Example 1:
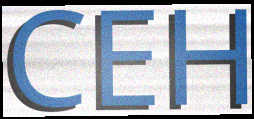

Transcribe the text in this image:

CEH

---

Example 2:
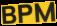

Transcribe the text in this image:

BPM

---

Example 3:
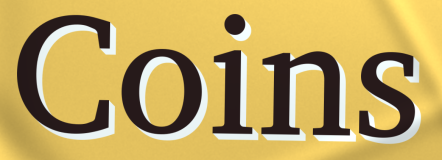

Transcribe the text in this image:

Coins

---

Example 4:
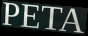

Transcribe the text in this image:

PETA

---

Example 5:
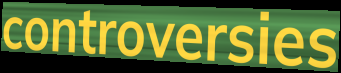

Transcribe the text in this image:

controversies